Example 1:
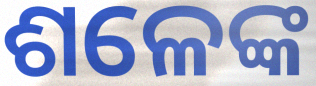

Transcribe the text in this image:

ଶଳେଙ୍କ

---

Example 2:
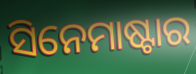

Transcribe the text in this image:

ସିନେମାଷ୍ଟାର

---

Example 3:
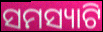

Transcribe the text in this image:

ସମସ୍ୟାଟି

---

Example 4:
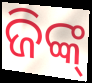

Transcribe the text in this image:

ଜିଙ୍କ୍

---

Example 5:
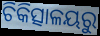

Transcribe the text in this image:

ଚିକିତ୍ସାଳୟରୁ